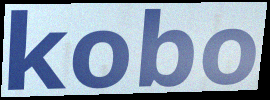
kobo